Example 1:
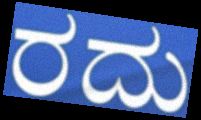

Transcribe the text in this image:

ರದು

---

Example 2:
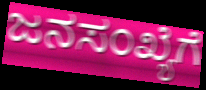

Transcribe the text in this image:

ಜನಸಂಖ್ಯೆಗೆ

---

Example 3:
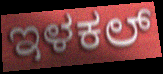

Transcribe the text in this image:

ಇಳಕಲ್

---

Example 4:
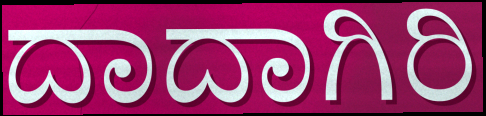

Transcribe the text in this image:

ದಾದಾಗಿರಿ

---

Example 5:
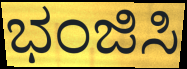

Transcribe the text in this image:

ಭಂಜಿಸಿ